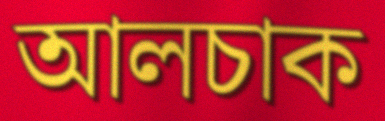
আলচাক